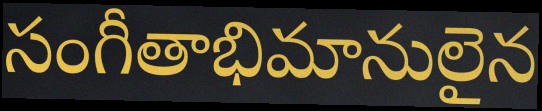
సంగీతాభిమానులైన